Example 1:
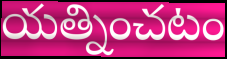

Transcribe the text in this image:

యత్నించటం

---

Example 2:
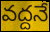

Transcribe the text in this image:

వద్దనే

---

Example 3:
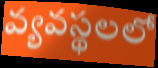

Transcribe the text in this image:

వ్యవస్థలలో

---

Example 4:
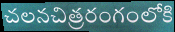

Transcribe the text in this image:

చలనచిత్రరంగంలోకి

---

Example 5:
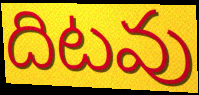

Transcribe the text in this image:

దిటవు